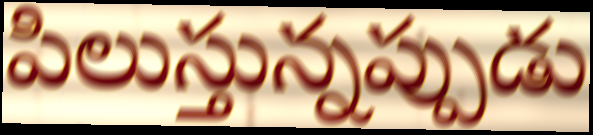
పిలుస్తున్నప్పుడు